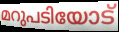
മറുപടിയോട്